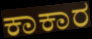
ಕಾಕಾರ